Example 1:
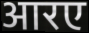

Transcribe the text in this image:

आरए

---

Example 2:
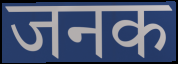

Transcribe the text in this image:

जनक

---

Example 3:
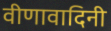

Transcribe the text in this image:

वीणावादिनी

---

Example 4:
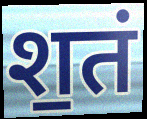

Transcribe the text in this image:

श॒तं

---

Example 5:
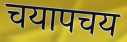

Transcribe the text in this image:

चयापचय